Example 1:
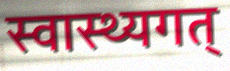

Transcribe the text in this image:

स्वास्थ्यगत्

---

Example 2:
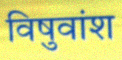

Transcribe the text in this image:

विषुवांश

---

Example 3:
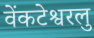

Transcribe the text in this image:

वेंकटेश्वरलु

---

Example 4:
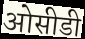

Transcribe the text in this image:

ओसीडी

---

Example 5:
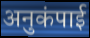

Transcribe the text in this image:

अनुकंपाई